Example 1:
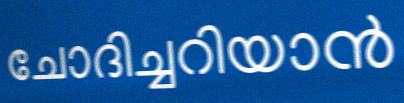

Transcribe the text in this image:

ചോദിച്ചറിയാൻ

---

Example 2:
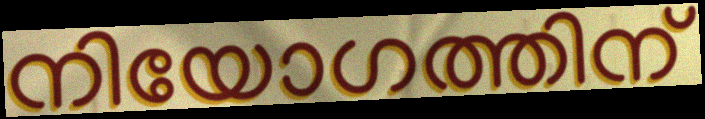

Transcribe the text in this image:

നിയോഗത്തിന്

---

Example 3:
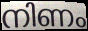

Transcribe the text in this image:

നിണം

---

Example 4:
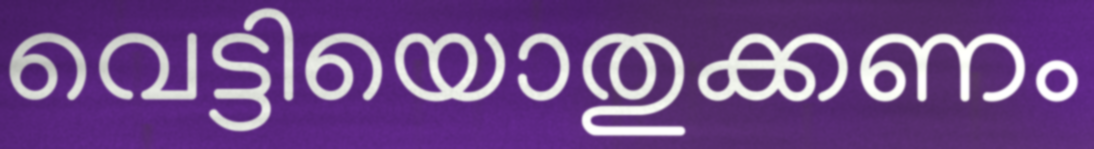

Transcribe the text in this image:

വെട്ടിയൊതുക്കണം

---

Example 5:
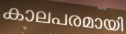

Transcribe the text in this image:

കാലപരമായി